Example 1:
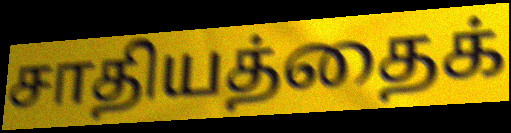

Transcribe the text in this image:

சாதியத்தைக்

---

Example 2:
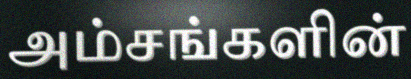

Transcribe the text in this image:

அம்சங்களின்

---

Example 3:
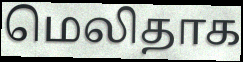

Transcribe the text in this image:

மெலிதாக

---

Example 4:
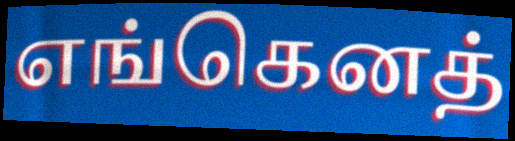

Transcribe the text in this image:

எங்கெனத்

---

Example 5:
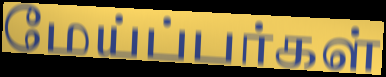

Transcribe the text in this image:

மேய்ப்பர்கள்